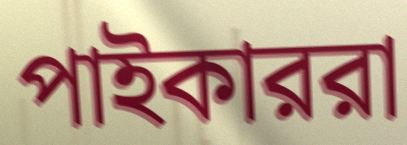
পাইকাররা